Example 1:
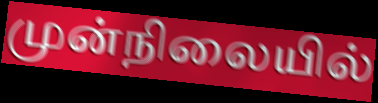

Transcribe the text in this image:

முன்நிலையில்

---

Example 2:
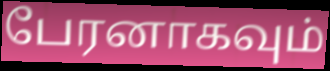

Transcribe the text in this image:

பேரனாகவும்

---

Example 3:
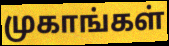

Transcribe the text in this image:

முகாங்கள்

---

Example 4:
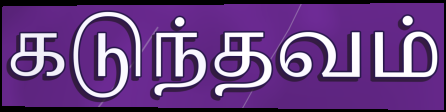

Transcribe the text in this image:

கடுந்தவம்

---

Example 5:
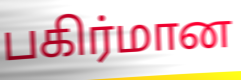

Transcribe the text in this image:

பகிர்மான